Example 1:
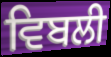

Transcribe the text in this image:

ਵਿਬਲੀ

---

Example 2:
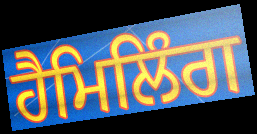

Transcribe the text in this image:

ਹੈਮਿਲਿੰਗ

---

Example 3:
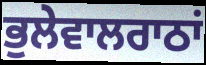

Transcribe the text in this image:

ਭੁਲੇਵਾਲਰਾਠਾਂ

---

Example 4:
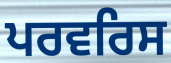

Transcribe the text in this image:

ਪਰਵਰਿਸ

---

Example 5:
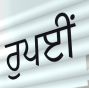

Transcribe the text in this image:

ਰੁਪਈਂ